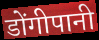
डोंगीपानी